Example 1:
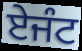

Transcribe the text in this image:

ਏਜੰਟ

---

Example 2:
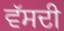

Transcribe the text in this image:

ਵੱਸਦੀ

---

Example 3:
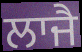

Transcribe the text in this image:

ਲਾਜੈ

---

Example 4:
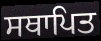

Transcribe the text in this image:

ਸਥਾਪਿਤ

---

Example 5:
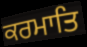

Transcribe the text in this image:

ਕਰਮਾਤਿ